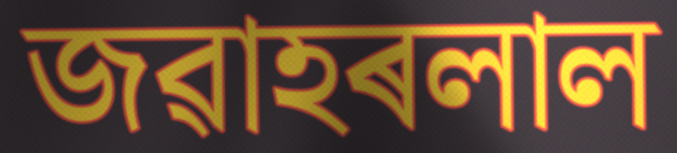
জৱাহৰলাল